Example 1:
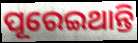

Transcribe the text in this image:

ପୂରେଇଥାନ୍ତି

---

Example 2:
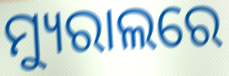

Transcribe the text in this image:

ମ୍ୟୁରାଲରେ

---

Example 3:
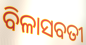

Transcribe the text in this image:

ବିଳାସବତୀ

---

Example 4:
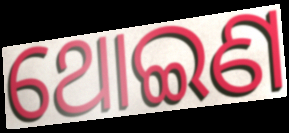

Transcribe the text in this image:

ଥୋଇଣ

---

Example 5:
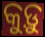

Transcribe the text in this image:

କୁଡ଼ୁ